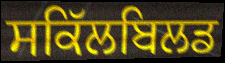
ਸਕਿੱਲਬਿਲਡ